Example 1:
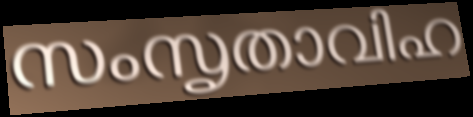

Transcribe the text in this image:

സംസൃതാവിഹ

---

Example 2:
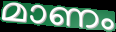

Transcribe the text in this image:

മാണം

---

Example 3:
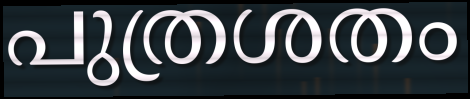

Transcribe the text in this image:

പുത്രശതം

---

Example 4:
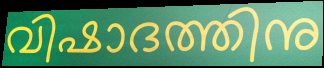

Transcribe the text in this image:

വിഷാദത്തിനു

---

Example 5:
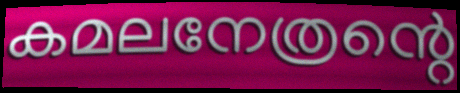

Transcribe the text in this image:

കമലനേത്രന്റെ